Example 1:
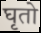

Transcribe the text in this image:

घृतो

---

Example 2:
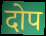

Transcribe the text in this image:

दोप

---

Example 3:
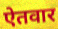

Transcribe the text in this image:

ऐतवार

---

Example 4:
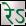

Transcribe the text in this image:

रेऽ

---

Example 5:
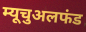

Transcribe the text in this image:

म्यूचुअलफंड